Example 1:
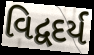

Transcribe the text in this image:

વિદ્વદર્ય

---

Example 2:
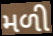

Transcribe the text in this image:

મળી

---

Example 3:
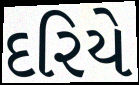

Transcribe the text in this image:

દરિયે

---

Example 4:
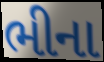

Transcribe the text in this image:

ભીના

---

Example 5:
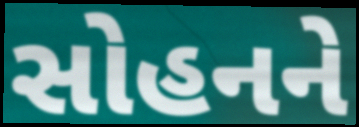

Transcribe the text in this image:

સોહનને